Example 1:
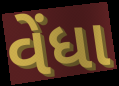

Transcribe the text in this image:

વેંધા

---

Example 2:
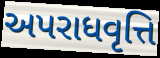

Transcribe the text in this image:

અપરાધવૃત્તિ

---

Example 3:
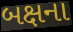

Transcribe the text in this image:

બક્ષના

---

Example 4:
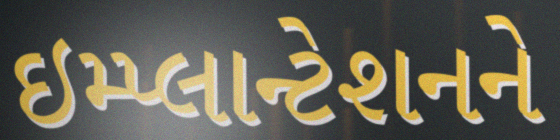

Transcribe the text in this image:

ઇમ્પ્લાન્ટેશનને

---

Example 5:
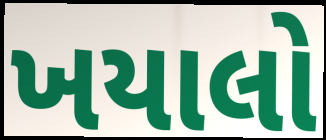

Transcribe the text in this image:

ખયાલો